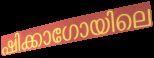
ഷിക്കാഗോയിലെ